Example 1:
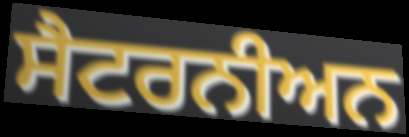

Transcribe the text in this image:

ਸੈਟਰਨੀਅਨ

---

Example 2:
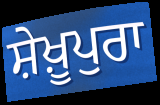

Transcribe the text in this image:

ਸ਼ੇਖ਼ੂਪੁਰਾ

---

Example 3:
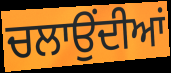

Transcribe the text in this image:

ਚਲਾਉਂਦੀਆਂ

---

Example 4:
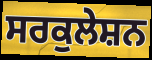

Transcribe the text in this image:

ਸਰਕੁਲੇਸ਼ਨ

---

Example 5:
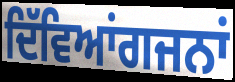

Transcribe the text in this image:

ਦਿੱਵਿਆਂਗਜਨਾਂ